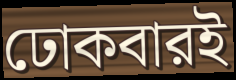
ঢোকবারই